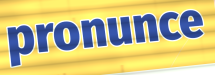
pronunce